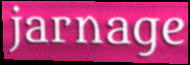
jarnage